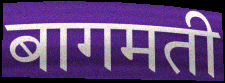
बागमती